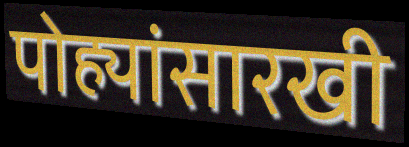
पोह्यांसारखी